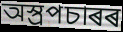
অস্ত্ৰপচাৰৰ